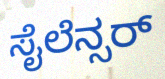
ಸೈಲೆನ್ಸರ್